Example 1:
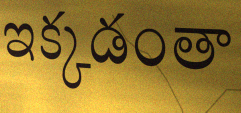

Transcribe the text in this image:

ఇక్కడంతా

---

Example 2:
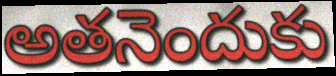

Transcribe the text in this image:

అతనెందుకు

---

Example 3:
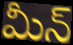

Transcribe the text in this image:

మీన్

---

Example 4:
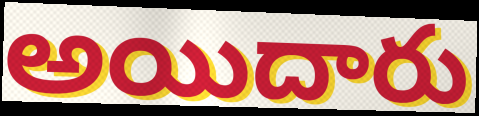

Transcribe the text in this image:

అయిదారు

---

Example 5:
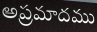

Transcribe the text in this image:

అప్రమాదము